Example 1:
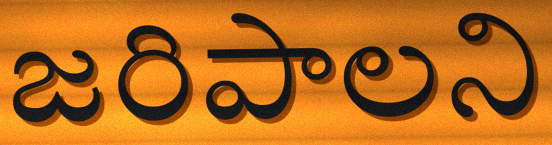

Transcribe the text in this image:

జరిపాలని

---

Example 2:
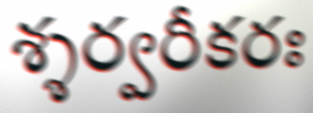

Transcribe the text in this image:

శ్శర్వరీకరః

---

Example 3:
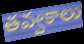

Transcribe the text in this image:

తవ్వకాలు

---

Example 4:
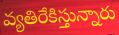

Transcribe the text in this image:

వ్యతిరేకిస్తున్నారు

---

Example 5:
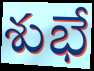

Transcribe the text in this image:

శుభే